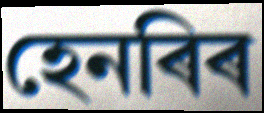
হেনৰিৰ